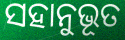
ସହାନୁଭୂତ